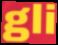
gli